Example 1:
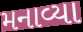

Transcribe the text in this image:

મનાવ્યા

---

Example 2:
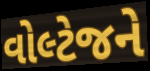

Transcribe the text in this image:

વોલ્ટેજને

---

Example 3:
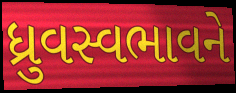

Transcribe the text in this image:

ધ્રુવસ્વભાવને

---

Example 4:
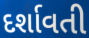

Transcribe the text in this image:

દર્શાવતી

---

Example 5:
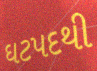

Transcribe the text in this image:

ઘટપદથી